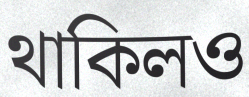
থাকিলও